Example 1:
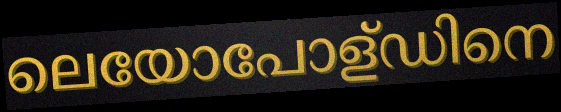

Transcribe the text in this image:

ലെയോപോള്ഡിനെ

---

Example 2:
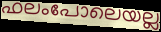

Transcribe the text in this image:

ഫലംപോലെയല്ല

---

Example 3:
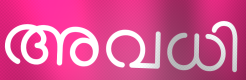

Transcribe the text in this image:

അവധി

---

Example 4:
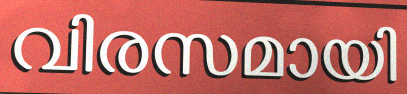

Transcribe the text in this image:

വിരസമായി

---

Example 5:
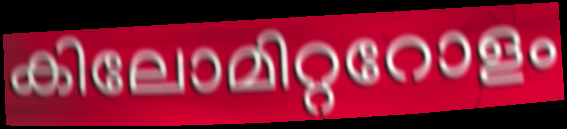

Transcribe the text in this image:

കിലോമിറ്ററോളം